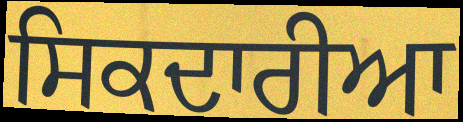
ਸਿਕਦਾਰੀਆ